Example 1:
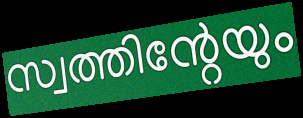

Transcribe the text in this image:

സ്വത്തിന്റേയും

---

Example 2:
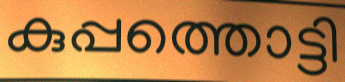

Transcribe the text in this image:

കുപ്പത്തൊട്ടി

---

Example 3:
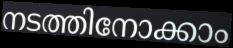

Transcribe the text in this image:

നടത്തിനോക്കാം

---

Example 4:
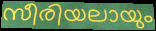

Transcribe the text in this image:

സീരിയലായും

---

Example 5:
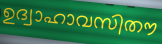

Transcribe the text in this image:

ഉദ്വാഹാവസിതൗ